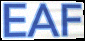
EAF